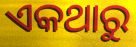
ଏକଥାରୁ